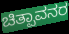
ಚಿತ್ಪಾವನರ